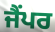
ਜੈਂਪਰ